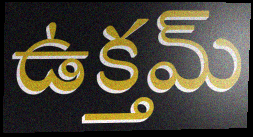
ఉక్తమ్